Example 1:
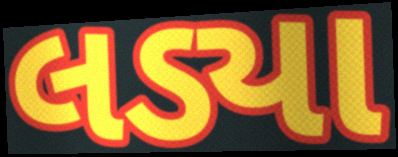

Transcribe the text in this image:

લડ્યા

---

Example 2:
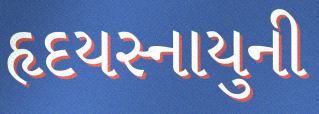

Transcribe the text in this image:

હૃદયસ્નાયુની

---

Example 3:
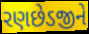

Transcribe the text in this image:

રણછેડજીને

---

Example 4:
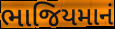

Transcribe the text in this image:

ભાજિયમાનં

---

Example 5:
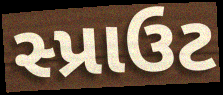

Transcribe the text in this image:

સ્પ્રાઉટ